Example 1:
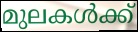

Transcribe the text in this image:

മുലകൾക്ക്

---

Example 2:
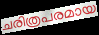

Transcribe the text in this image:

ചരിത്രപരമായ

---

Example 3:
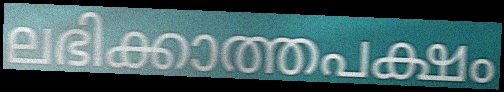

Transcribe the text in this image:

ലഭിക്കാത്തപക്ഷം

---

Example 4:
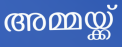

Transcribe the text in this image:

അമ്മയ്ക്ക്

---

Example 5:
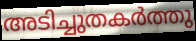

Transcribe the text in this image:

അടിച്ചുതകർത്തു